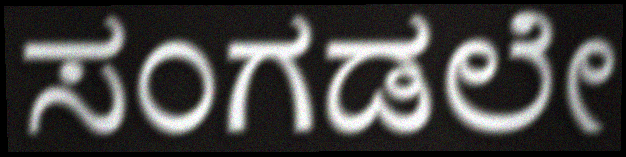
ಸಂಗಡಲೇ